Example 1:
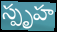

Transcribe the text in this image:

స్పృహ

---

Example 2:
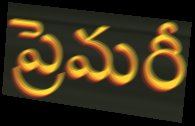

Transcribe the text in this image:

ప్రెమరీ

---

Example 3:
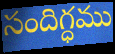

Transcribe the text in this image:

సందిగ్ధము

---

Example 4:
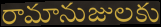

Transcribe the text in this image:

రామానుజులకు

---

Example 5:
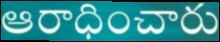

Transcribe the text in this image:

ఆరాధించారు